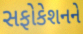
સફોકેશનને